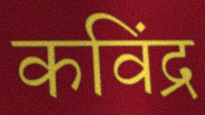
कविंद्र